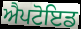
ਐਪਟੋਇਡ